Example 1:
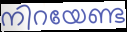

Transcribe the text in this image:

നിറയേണ്ട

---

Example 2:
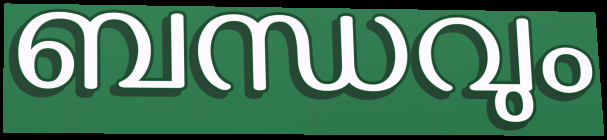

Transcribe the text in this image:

ബന്ധവും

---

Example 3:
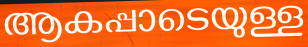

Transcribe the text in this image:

ആകപ്പാടെയുള്ള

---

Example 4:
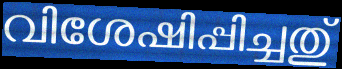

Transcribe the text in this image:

വിശേഷിപ്പിച്ചതു്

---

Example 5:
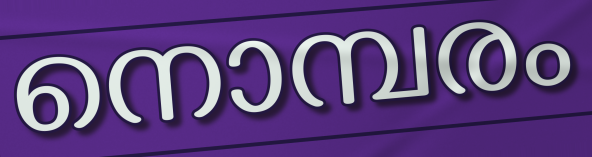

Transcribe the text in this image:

നൊമ്പരം